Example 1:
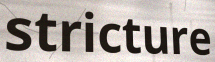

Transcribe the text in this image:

stricture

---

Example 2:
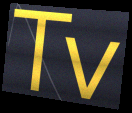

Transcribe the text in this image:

Tv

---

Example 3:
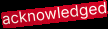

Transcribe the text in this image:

acknowledged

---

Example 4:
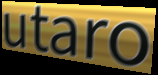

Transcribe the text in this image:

utaro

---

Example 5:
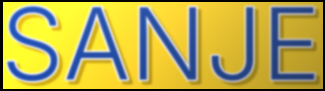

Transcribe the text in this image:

SANJE